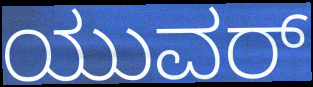
ಯುವರ್